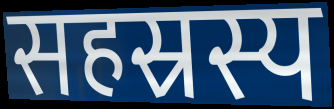
सहस्रस्य